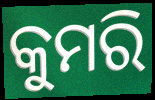
କୁମରି